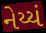
નેય્યં